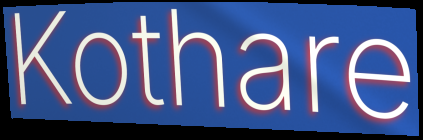
Kothare